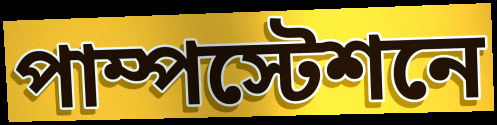
পাম্পস্টেশনে